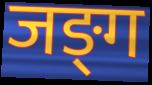
जङ्ग